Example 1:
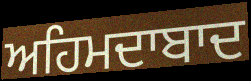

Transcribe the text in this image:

ਅਹਿਮਦਾਬਾਦ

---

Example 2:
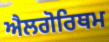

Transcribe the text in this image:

ਐਲਗੋਰਿਥਮ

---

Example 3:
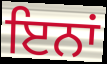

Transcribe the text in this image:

ਇਨਾਂ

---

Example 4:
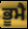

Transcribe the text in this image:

ਭੂਮੈ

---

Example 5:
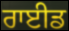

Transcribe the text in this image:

ਰਾਈਡ